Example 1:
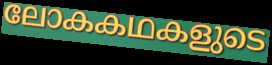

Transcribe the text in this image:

ലോകകഥകളുടെ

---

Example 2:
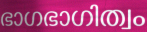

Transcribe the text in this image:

ഭാഗഭാഗിത്വം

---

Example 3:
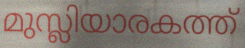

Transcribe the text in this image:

മുസ്ലിയാരകത്ത്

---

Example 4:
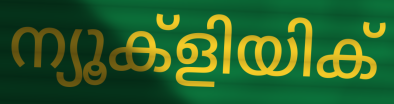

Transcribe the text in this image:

ന്യൂക്ളിയിക്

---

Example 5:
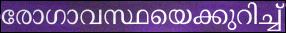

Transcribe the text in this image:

രോഗാവസ്ഥയെക്കുറിച്ച്